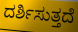
ದರ್ಶಿಸುತ್ತದೆ